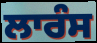
ਲਾਰੰਸ